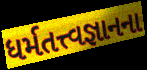
ધર્મતત્ત્વજ્ઞાનના